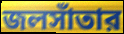
জলসাঁতার